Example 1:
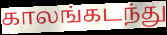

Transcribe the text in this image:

காலங்கடந்து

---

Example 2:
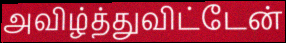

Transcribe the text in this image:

அவிழ்த்துவிட்டேன்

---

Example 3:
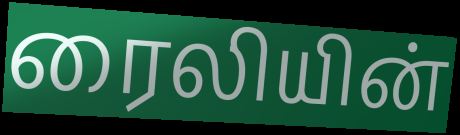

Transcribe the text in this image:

ரைலியின்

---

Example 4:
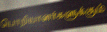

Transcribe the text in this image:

பொறியாளர்களுக்கும்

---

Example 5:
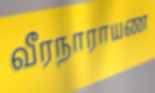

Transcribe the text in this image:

வீரநாராயண